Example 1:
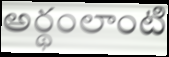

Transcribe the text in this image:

అర్థంలాంటి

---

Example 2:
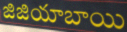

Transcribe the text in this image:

జిజియాబాయి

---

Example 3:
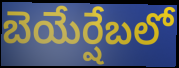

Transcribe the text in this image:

బెయేర్షేబలో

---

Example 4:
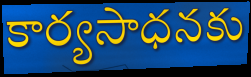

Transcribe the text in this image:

కార్యసాధనకు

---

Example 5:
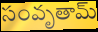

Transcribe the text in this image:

సంవృతామ్